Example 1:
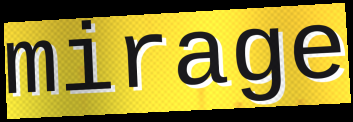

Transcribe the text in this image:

mirage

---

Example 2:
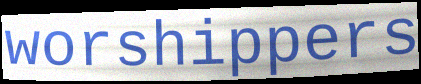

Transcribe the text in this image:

worshippers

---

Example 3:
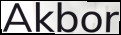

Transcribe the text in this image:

Akbor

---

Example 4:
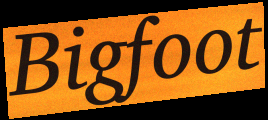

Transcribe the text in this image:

Bigfoot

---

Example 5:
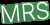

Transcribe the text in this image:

MRS